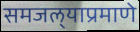
समजल्याप्रमाणे